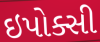
ઇપોક્સી